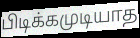
பிடிக்கமுடியாத